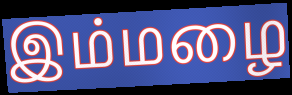
இம்மழை